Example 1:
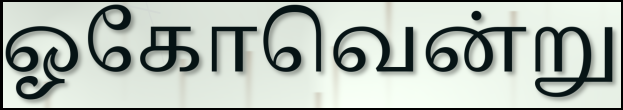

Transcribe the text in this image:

ஓகோவென்று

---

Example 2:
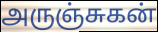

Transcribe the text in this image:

அருஞ்சுகன்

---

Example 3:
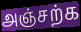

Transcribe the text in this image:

அஞ்சற்க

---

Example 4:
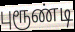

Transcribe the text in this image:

புரூண்டி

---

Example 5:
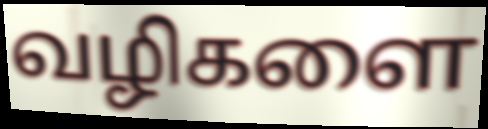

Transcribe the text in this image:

வழிகளை